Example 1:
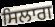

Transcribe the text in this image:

ਸਿਲਾਗ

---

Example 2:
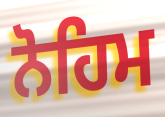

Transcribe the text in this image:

ਨੋਹਿਮ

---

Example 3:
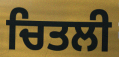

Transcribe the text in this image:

ਚਿਤਲੀ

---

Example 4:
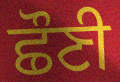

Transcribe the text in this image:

ਛੌਣੀ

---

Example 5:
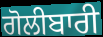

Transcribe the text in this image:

ਗੋਲੀਬਾਰੀ